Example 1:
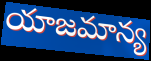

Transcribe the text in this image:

యాజమాన్య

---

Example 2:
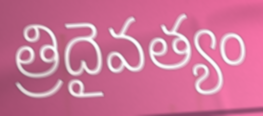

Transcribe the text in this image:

త్రిదైవత్యం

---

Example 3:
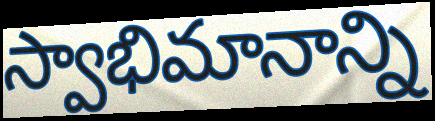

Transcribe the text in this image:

స్వాభిమానాన్ని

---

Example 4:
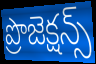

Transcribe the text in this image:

ప్రొజెక్షన్స్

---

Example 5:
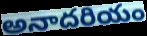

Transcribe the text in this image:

అనాదరియం